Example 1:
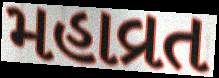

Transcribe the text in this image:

મહાવ્રત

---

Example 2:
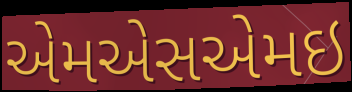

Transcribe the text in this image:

એમએસએમઇ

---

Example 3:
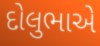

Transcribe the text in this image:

દોલુભાએ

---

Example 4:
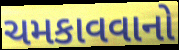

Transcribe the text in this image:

ચમકાવવાનો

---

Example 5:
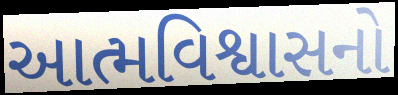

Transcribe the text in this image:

આત્મવિશ્વાસનો